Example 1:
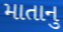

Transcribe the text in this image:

માતાનુ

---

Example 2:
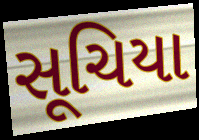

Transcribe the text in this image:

સૂચિયા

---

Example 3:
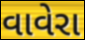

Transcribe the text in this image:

વાવેરા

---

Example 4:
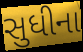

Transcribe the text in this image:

સુધીના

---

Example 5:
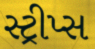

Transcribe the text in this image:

સ્ટ્રીપ્સ